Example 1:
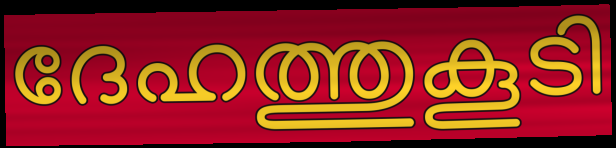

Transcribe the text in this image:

ദേഹത്തുകൂടി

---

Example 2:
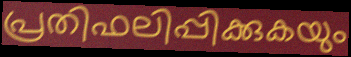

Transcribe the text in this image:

പ്രതിഫലിപ്പിക്കുകയും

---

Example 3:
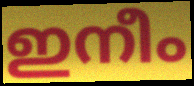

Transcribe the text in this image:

ഇനീം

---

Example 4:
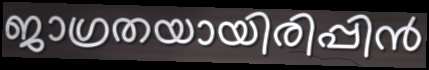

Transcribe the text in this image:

ജാഗ്രതയായിരിപ്പിൻ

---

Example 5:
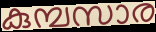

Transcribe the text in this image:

കുമ്പസാര